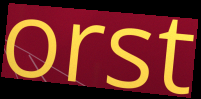
orst